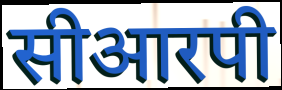
सीआरपी